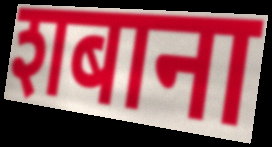
शबाना